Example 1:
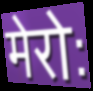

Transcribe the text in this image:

मेरोः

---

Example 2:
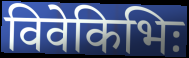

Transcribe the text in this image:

विवेकिभिः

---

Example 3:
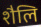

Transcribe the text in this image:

शैलि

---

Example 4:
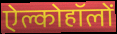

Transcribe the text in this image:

ऐल्कोहॉलों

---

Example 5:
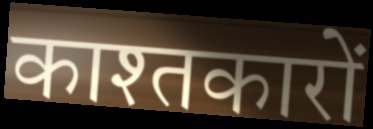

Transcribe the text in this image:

काश्तकारों